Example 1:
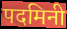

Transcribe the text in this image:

पदमिनी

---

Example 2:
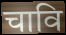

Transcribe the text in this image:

चावि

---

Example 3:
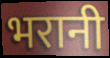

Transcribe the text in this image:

भरानी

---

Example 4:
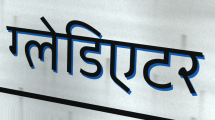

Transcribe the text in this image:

ग्लेडिएटर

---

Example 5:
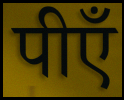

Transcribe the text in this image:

पीएँ